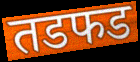
तडफड